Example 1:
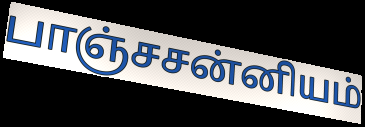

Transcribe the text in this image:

பாஞ்சசன்னியம்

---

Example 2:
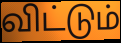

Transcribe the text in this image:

விட்டும்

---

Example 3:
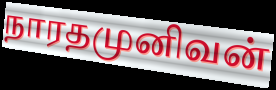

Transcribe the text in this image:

நாரதமுனிவன்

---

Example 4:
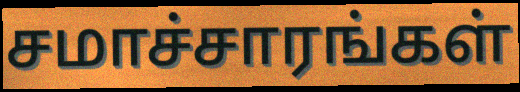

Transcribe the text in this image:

சமாச்சாரங்கள்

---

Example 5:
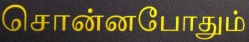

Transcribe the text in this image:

சொன்னபோதும்